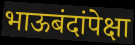
भाऊबंदांपेक्षा